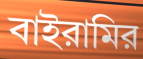
বাইরামির